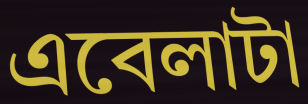
এবেলাটা